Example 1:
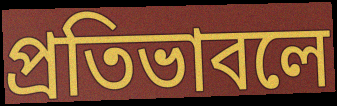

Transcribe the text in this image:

প্রতিভাবলে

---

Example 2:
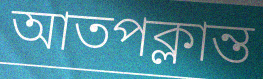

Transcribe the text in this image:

আতপক্লান্ত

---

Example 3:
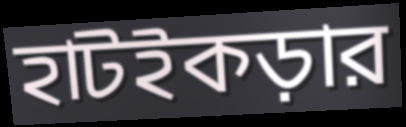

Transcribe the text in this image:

হাটইকড়ার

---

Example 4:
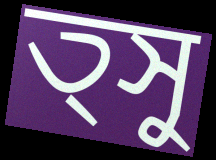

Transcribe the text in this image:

ত্সু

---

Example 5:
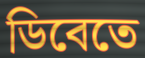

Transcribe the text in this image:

ডিবেতে